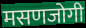
मसणजोगी